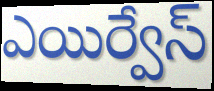
ఎయిర్వేస్